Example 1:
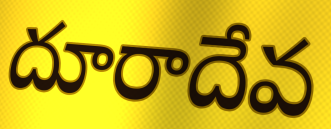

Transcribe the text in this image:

దూరాదేవ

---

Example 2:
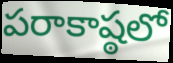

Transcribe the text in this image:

పరాకాష్ఠలో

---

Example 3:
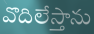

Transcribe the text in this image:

వొదిలేస్తాను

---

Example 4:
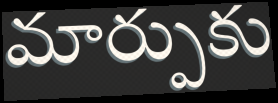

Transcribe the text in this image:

మార్పుకు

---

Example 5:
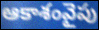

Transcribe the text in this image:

ఆకాశంవైపు